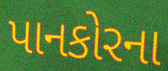
પાનકોરના